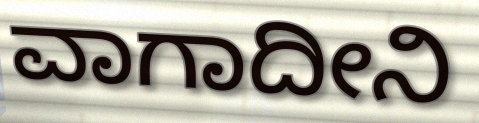
ವಾಗಾದೀನಿ